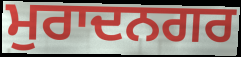
ਮੁਰਾਦਨਗਰ